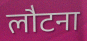
लौटना